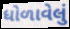
ધોળાવેલું